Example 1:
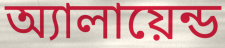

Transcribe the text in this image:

অ্যালায়েন্ড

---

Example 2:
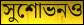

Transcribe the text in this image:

সুশোভনও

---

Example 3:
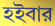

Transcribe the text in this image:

হইবার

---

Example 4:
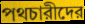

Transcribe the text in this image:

পথচারীদের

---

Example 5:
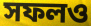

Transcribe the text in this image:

সফলও